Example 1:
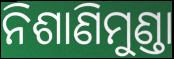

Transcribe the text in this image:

ନିଶାଣିମୁଣ୍ଡା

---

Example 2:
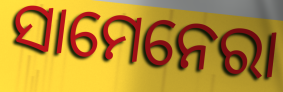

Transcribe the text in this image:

ସାମେନେରା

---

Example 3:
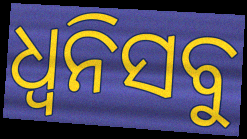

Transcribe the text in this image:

ଧ୍ୱନିସବୁ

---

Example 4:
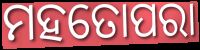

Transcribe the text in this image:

ମହତୋପରା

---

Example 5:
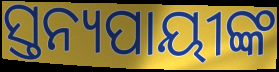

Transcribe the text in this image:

ସ୍ତନ୍ୟପାୟୀଙ୍କ